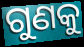
ଗୁଣକୁ